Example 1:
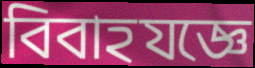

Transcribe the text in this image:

বিবাহযজ্ঞে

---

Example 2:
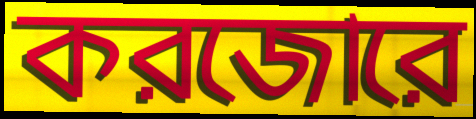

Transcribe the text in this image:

করজোরে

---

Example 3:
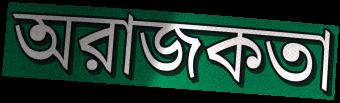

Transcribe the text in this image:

অরাজকতা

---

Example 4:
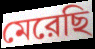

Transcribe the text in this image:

মেরেছি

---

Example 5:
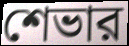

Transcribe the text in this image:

শেভার